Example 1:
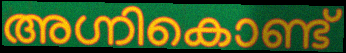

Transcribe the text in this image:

അഗ്നികൊണ്ട്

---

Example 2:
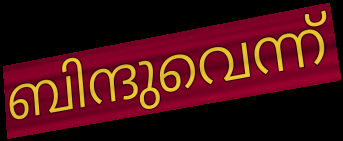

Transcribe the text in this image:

ബിന്ദുവെന്ന്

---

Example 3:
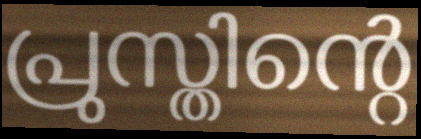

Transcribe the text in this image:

പ്രുസ്തിന്റെ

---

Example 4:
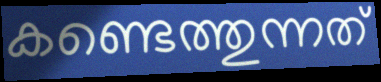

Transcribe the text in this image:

കണ്ടെത്തുന്നത്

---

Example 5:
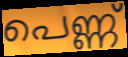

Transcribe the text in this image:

പെണ്ണ്